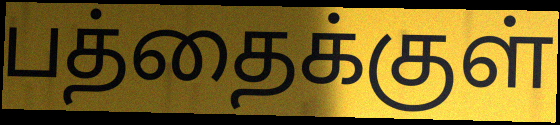
பத்தைக்குள்